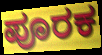
ಪೂರಕ